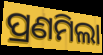
ପ୍ରଣମିଲା